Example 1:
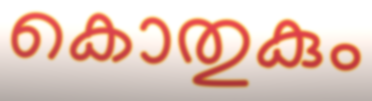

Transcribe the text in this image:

കൊതുകും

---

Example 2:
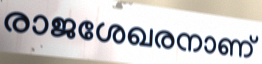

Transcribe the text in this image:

രാജശേഖരനാണ്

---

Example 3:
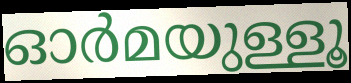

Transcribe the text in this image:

ഓർമയുള്ളൂ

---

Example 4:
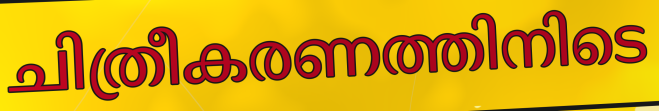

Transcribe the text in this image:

ചിത്രീകരണത്തിനിടെ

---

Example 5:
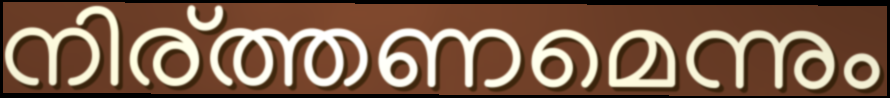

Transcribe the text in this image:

നിര്ത്തണമെന്നും